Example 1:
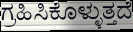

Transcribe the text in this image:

ಗ್ರಹಿಸಿಕೊಳ್ಳುತ್ತದೆ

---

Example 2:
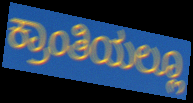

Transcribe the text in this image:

ಕ್ರಾಂತಿಯಲ್ಲೂ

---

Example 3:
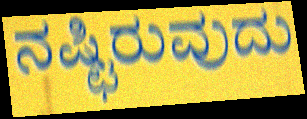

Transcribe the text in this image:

ನಷ್ಟಿರುವುದು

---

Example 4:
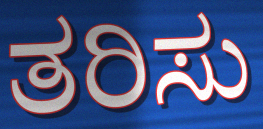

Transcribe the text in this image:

ತರಿಸು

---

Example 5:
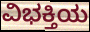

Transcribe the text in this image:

ವಿಭಕ್ತಿಯ